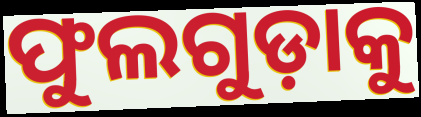
ଫୁଲଗୁଡ଼ାକୁ